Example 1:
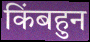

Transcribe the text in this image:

किंबहुन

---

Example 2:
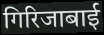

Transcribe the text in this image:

गिरिजाबाई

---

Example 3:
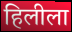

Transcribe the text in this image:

हिलीला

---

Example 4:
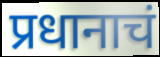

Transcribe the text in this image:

प्रधानाचं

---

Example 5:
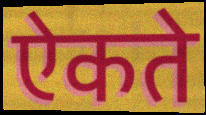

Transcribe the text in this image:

ऐकते